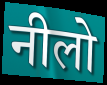
नीलो